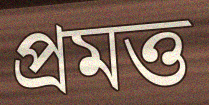
প্রমত্ত